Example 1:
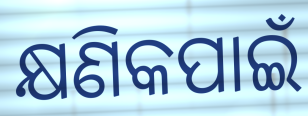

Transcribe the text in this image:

କ୍ଷଣିକପାଇଁ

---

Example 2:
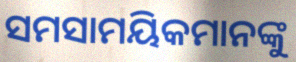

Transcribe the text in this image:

ସମସାମୟିକମାନଙ୍କୁ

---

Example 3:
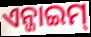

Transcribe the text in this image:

ଏନ୍ଜାଇମ୍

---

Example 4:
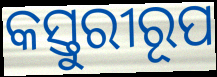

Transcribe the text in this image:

କସ୍ତୁରୀରୂପ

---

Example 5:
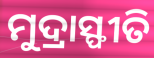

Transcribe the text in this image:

ମୁଦ୍ରାସ୍ଫୀତି